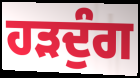
ਹੜਦੁੰਗ